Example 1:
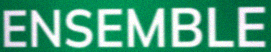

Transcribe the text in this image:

ENSEMBLE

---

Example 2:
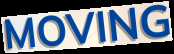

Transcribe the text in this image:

MOVING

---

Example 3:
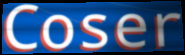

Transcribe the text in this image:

Coser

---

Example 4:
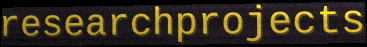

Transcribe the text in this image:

researchprojects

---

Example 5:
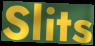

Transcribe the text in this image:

Slits